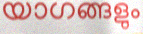
യാഗങ്ങളും